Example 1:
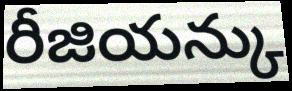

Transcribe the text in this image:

రీజియన్కు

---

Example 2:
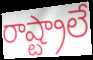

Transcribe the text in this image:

రాష్ట్రాలే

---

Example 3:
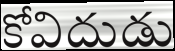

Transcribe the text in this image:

కోవిదుడు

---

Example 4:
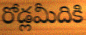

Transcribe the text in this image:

రోడ్లమీదికి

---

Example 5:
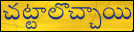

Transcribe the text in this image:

చట్టాలొచ్చాయి